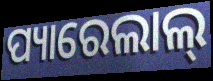
ପ୍ୟାରେଲାଲ୍